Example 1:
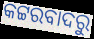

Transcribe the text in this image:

କଟ୍ଟରବାଦରୁ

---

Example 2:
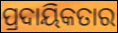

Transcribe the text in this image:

ପ୍ରଦାୟିକତାର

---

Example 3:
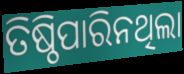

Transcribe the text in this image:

ତିଷ୍ଠିପାରିନଥିଲା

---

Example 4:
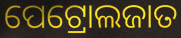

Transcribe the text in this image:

ପେଟ୍ରୋଲଜାତ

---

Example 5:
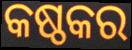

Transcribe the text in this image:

କଷ୍ଠକର